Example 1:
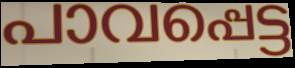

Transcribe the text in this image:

പാവപ്പെട്ട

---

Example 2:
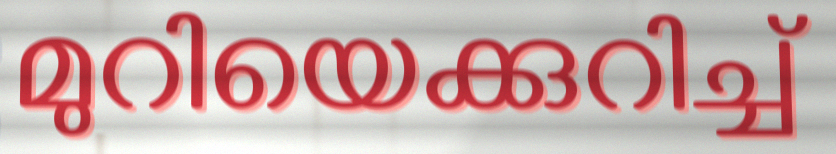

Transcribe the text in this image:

മുറിയെക്കുറിച്ച്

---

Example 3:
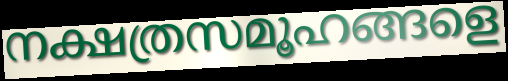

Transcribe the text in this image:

നക്ഷത്രസമൂഹങ്ങളെ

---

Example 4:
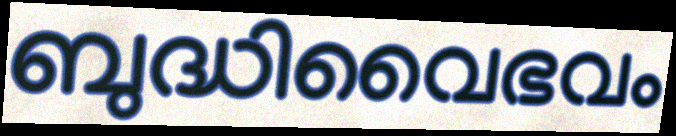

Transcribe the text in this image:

ബുദ്ധിവൈഭവം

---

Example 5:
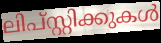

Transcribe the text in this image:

ലിപ്സ്റ്റിക്കുകൾ